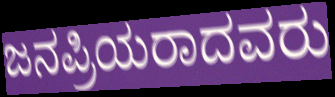
ಜನಪ್ರಿಯರಾದವರು